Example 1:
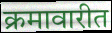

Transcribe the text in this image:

क्रमावारीत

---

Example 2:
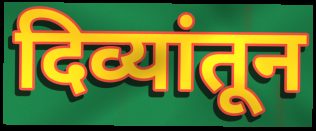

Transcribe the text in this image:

दिव्यांतून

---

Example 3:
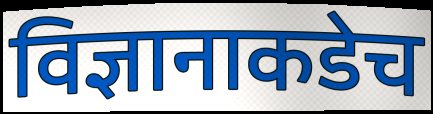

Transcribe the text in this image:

विज्ञानाकडेच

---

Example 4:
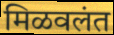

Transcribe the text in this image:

मिळवलंत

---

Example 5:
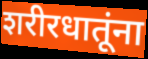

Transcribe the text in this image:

शरीरधातूंना